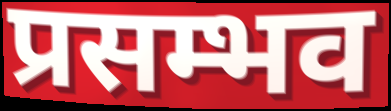
प्रसम्भव